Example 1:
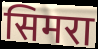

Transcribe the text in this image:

सिमरा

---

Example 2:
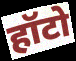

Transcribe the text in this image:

हॉटो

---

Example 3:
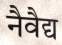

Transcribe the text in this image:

नैवैद्य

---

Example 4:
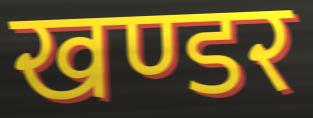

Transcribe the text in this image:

खण्डर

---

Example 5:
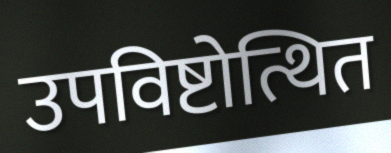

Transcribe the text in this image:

उपविष्टोत्थित